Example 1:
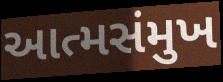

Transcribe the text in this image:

આત્મસંમુખ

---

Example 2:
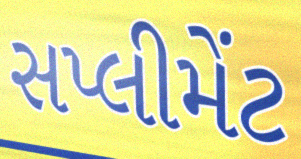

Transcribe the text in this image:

સપ્લીમેંટ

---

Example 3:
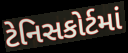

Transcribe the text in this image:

ટેનિસકોર્ટમાં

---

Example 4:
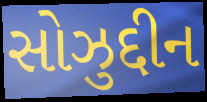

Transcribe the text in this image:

સોઝુદ્દીન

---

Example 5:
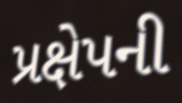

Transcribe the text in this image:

પ્રક્ષેપની